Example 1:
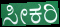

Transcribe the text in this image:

ಸೀಕರಿ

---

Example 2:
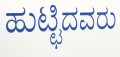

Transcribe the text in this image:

ಹುಟ್ಟಿದವರು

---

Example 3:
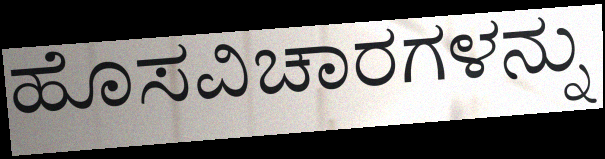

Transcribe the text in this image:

ಹೊಸವಿಚಾರಗಳನ್ನು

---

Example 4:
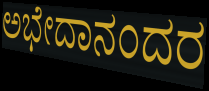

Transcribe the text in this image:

ಅಭೇದಾನಂದರ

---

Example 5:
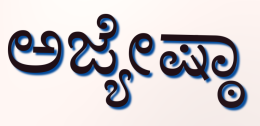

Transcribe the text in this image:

ಅಜ್ಯೇಷ್ಠಾ